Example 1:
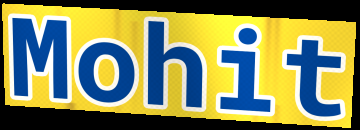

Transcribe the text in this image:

Mohit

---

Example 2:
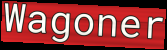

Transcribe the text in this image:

Wagoner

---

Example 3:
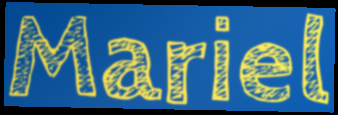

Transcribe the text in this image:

Mariel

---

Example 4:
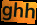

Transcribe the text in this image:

ghh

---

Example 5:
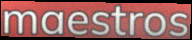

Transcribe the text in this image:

maestros